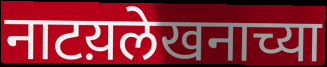
नाटय़लेखनाच्या